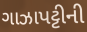
ગાઝાપટ્ટીની